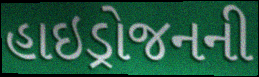
હાઇડ્રોજનની